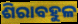
ଶିରାବହୁଳ